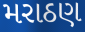
મરાઠણ